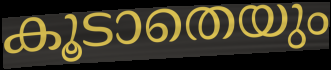
കൂടാതെയും